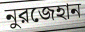
নুরজেহান